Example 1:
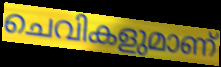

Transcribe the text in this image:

ചെവികളുമാണ്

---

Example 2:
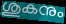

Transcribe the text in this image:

ശുകനും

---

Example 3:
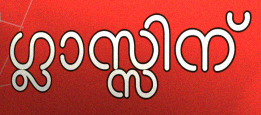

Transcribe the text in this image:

ഗ്ലാസ്സിന്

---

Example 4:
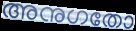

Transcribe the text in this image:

അനുഗതോ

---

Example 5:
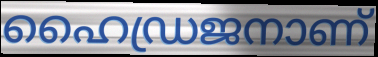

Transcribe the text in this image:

ഹൈഡ്രജനാണ്